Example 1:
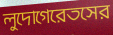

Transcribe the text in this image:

লুদোগেরেতসের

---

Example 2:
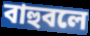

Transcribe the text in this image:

বাহুবলে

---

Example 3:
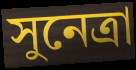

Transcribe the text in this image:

সুনেত্রা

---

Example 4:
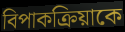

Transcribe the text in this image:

বিপাকক্রিয়াকে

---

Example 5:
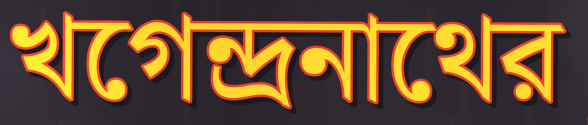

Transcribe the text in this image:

খগেন্দ্রনাথের